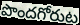
పొందగోరుట